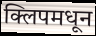
क्लिपमधून